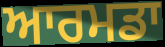
ਆਰਮਡਾ